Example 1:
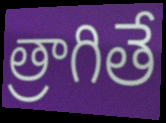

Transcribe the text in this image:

త్రాగితే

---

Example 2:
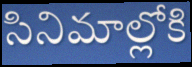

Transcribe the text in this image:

సినిమాల్లోకి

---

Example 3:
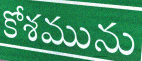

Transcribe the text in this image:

కోశమును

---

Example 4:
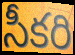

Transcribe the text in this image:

సీకరి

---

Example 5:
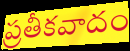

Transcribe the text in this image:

ప్రతీకవాదం